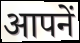
आपनें